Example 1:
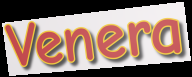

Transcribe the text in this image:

Venera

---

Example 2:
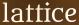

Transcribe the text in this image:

lattice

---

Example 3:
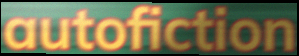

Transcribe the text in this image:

autofiction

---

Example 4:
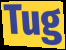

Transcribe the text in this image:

Tug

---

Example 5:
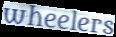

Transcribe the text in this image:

wheelers